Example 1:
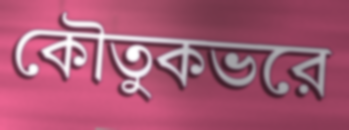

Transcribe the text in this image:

কৌতুকভরে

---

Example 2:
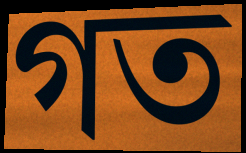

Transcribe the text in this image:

গত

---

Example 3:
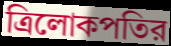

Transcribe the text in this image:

ত্রিলোকপতির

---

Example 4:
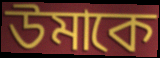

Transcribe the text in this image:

উমাকে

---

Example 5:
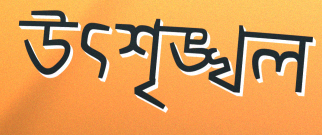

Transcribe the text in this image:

উৎশৃঙ্খল